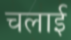
चलाई